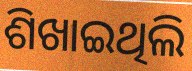
ଶିଖାଇଥିଲି